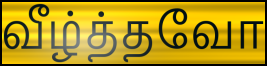
வீழ்த்தவோ